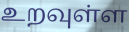
உறவுள்ள